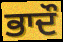
ਭਾਦੌ